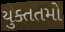
યુક્તતમો